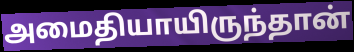
அமைதியாயிருந்தான்